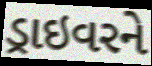
ડ્રાઇવરને